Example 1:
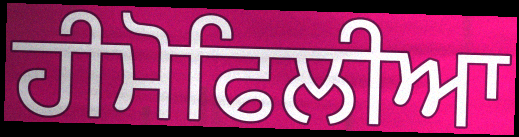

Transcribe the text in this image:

ਹੀਮੋਫਿਲੀਆ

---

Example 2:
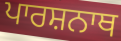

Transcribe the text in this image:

ਪਾਰਸ਼ਨਾਥ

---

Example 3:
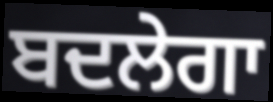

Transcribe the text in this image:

ਬਦਲੇਗਾ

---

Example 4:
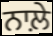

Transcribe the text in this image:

ਨਾਲ਼ੇ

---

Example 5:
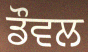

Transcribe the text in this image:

ਡੌਵਲ